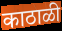
काठाळी